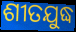
ଶୀତଯୁଦ୍ଧ